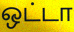
ஒட்டா